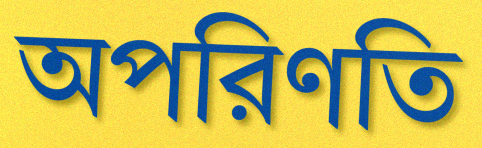
অপরিণতি